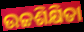
ଉଚ୍ଚଶିକ୍ଷିତା